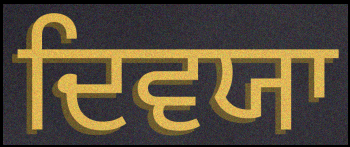
ਦਿਵਯਾ